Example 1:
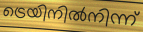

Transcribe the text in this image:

ട്രെയിനിൽനിന്ന്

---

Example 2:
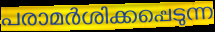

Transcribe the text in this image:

പരാമർശിക്കപ്പെടുന്ന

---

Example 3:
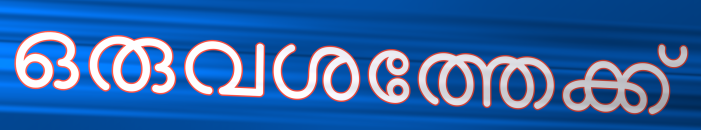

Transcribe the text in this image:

ഒരുവശത്തേക്ക്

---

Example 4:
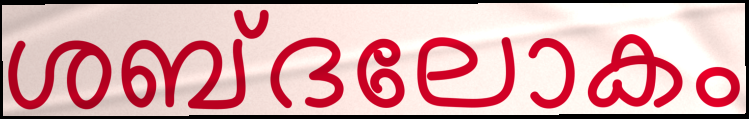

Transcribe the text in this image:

ശബ്ദലോകം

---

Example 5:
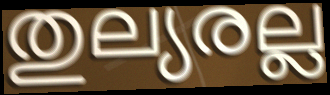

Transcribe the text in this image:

തുല്യരല്ല